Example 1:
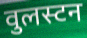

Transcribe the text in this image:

वुलस्टन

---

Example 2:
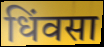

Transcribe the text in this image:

धिंवसा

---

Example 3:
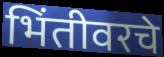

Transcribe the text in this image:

भिंतीवरचे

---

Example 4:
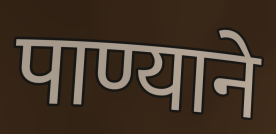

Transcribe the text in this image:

पाण्याने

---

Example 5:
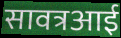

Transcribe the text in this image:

सावत्रआई